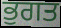
ਭੁਗਤ